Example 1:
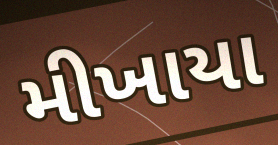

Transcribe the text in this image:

મીખાયા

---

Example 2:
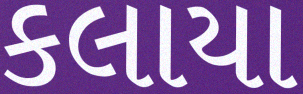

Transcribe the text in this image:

કલાયા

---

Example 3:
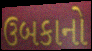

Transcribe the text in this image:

ઉબકાનો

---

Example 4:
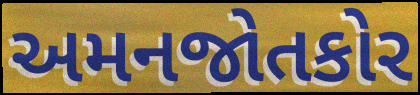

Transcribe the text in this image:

અમનજોતકોર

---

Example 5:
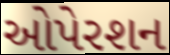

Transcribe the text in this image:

ઓપેરશન